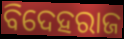
ବିଦେହରାଜ